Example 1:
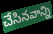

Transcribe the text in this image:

చేసినవాన్ని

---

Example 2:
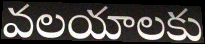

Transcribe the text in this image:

వలయాలకు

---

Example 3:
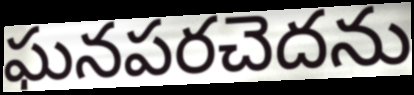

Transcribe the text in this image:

ఘనపరచెదను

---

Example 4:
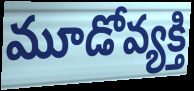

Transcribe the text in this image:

మూడోవ్యక్తి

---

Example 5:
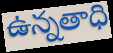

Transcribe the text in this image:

ఉన్నతాధి